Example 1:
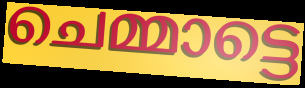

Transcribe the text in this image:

ചെമ്മാട്ടെ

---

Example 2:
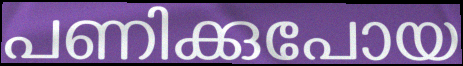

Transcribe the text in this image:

പണിക്കുപോയ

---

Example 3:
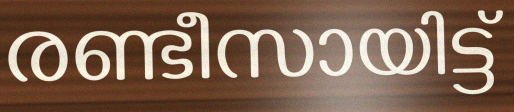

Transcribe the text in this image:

രണ്ടീസായിട്ട്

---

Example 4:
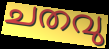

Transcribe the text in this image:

ചതവു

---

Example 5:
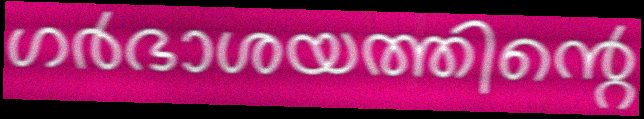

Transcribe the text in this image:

ഗർഭാശയത്തിന്റെ